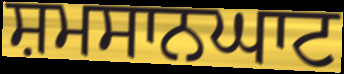
ਸ਼ਮਸਾਨਘਾਟ